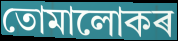
তোমালোকৰ